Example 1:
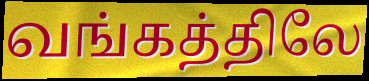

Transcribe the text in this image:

வங்கத்திலே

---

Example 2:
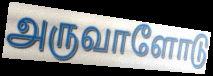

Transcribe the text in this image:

அருவாளோடு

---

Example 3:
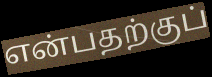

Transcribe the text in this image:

என்பதற்குப்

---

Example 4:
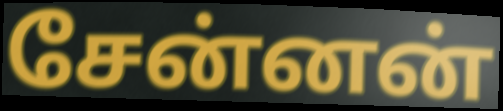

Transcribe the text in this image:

சேன்னன்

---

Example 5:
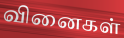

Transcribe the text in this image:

வினைகள்